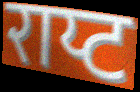
राय्ट